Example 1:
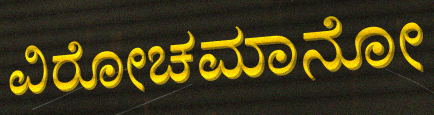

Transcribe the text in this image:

ವಿರೋಚಮಾನೋ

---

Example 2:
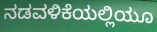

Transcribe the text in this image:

ನಡವಳಿಕೆಯಲ್ಲಿಯೂ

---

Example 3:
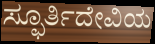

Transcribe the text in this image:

ಸ್ಫೂರ್ತಿದೇವಿಯ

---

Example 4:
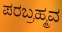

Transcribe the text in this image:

ಪರಬ್ರಹ್ಮವ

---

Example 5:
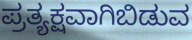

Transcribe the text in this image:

ಪ್ರತ್ಯಕ್ಷವಾಗಿಬಿಡುವ